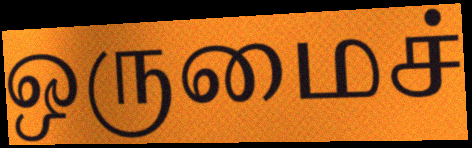
ஒருமைச்